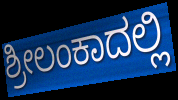
ಶ್ರೀಲಂಕಾದಲ್ಲಿ